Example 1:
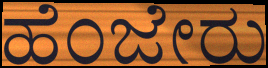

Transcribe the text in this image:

ಹೆಂಜೇರು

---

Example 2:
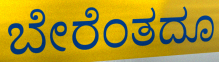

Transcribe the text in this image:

ಬೇರೆಂತದೂ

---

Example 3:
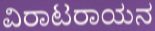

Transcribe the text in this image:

ವಿರಾಟರಾಯನ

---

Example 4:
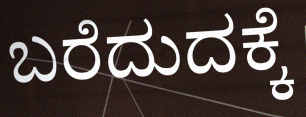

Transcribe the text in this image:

ಬರೆದುದಕ್ಕೆ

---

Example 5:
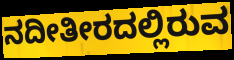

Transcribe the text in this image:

ನದೀತೀರದಲ್ಲಿರುವ